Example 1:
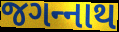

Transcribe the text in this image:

જગન્‍નાથ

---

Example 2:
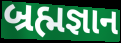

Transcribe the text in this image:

બ્રહ્મજ્ઞાન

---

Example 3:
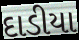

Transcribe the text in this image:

દાડીયા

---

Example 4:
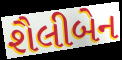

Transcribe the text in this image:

શૈલીબેન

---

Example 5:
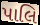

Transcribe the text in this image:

પાલિ